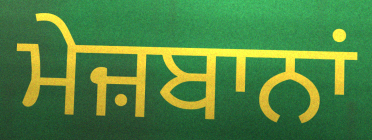
ਮੇਜ਼ਬਾਨਾਂ